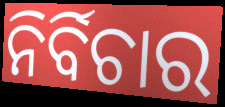
ନିର୍ବିଚାର